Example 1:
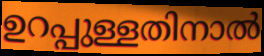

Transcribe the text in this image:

ഉറപ്പുള്ളതിനാൽ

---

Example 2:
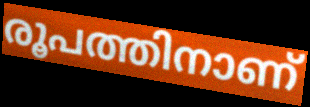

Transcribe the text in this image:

രൂപത്തിനാണ്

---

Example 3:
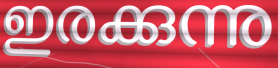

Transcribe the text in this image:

ഇരക്കുന്നു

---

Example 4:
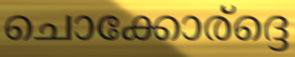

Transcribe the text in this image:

ചൊക്കോര്ദ്ദെ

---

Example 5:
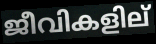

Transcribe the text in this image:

ജീവികളില്